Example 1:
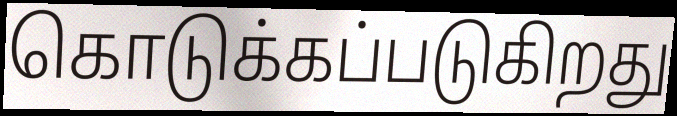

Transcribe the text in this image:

கொடுக்கப்படுகிறது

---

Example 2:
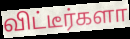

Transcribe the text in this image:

விட்டீர்களா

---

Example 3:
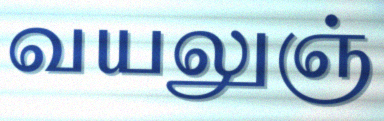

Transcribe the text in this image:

வயலுஞ்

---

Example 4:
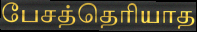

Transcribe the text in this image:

பேசத்தெரியாத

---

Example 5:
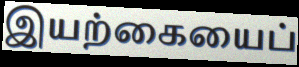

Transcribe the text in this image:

இயற்கையைப்